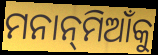
ମନାନ୍‌ମିଆଁକୁ